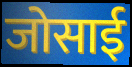
जोसाई